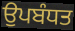
ਉਪਬੰਧਤ